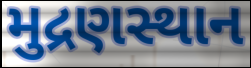
મુદ્રણસ્થાન